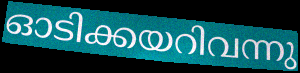
ഓടിക്കയറിവന്നു